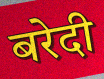
बरेदी